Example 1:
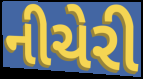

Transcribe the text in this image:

નીચેરી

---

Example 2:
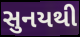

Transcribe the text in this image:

સુનયથી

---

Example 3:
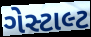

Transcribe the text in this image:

ગેસ્ટાલ્ટ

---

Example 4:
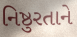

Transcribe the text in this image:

નિષ્ઠુરતાને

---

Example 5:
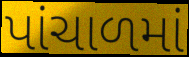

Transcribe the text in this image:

પાંચાળમાં